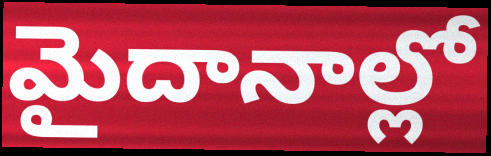
మైదానాల్లో